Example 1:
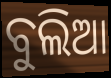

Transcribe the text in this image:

ବୁଲିଆ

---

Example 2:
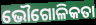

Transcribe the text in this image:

ଭୌଗୋଳିକତା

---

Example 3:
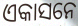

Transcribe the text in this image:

ଏକାସନେ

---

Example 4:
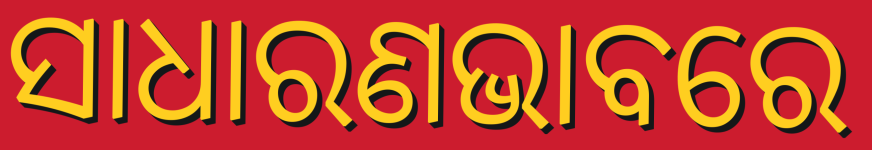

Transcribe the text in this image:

ସାଧାରଣଭାବରେ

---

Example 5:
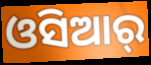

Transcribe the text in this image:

ଓସିଆର୍